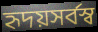
হৃদয়সর্বস্ব